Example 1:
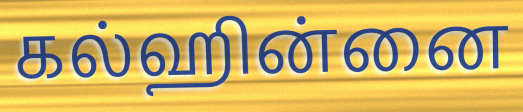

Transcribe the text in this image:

கல்ஹின்னை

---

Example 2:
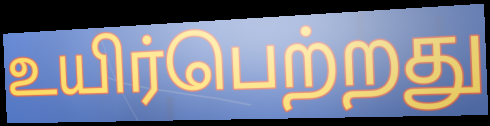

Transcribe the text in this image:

உயிர்பெற்றது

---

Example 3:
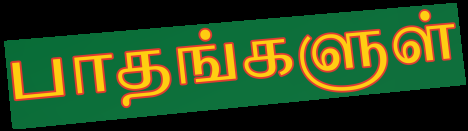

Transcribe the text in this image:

பாதங்களுள்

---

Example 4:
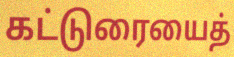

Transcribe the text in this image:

கட்டுரையைத்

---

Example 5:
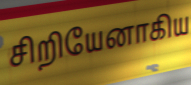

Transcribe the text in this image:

சிறியேனாகிய